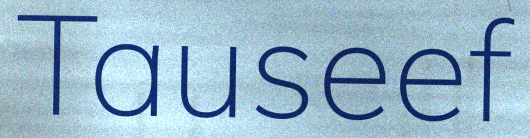
Tauseef